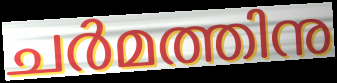
ചർമത്തിനു